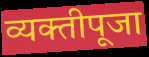
व्यक्तीपूजा